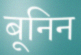
बूनिन